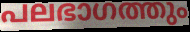
പലഭാഗത്തും